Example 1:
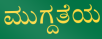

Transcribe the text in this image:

ಮುಗ್ದತೆಯ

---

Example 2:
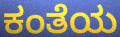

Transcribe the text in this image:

ಕಂತೆಯ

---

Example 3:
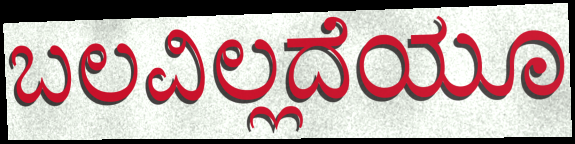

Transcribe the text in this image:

ಬಲವಿಲ್ಲದೆಯೂ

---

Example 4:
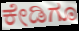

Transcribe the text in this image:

ಕೇಡಿಗೂ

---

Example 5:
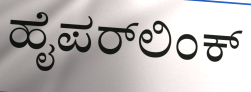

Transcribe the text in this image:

ಹೈಪರ್‌ಲಿಂಕ್